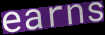
earns